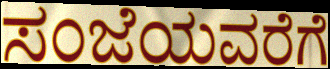
ಸಂಜೆಯವರೆಗೆ